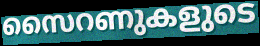
സൈറണുകളുടെ